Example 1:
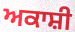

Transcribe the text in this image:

ਅਕਾਸ਼ੀ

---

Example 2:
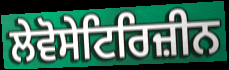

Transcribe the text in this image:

ਲੇਵੋਸੇਟਿਰਿਜ਼ੀਨ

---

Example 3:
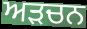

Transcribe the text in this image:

ਅੜਚਨ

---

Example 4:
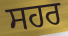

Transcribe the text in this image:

ਸਹਰ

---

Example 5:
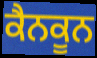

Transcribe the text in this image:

ਕੈਨਕੂਨ